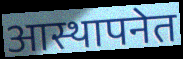
आस्थापनेत